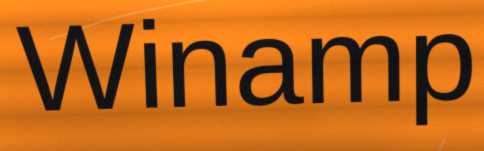
Winamp